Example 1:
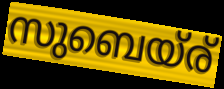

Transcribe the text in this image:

സുബെയ്ര്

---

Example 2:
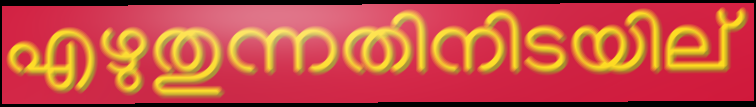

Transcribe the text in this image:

എഴുതുന്നതിനിടയില്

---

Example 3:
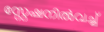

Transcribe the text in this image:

സ്റ്റേഷനിൽവച്ച്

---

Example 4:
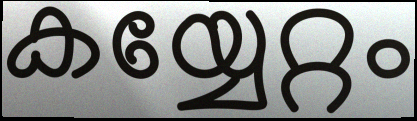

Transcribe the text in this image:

കയ്യേറ്റം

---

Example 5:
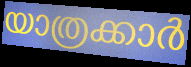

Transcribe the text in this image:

യാത്രക്കാർ